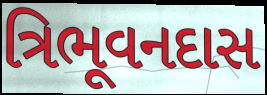
ત્રિભૂવનદાસ